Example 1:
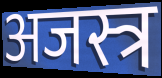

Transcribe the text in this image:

अजस्त्र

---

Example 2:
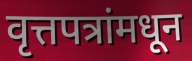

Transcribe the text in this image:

वृत्तपत्रांमधून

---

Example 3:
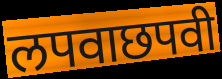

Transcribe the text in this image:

लपवाछपवी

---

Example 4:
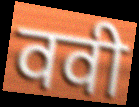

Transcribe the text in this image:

ववी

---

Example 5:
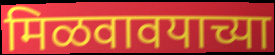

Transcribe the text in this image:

मिळवावयाच्या